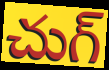
చుగ్